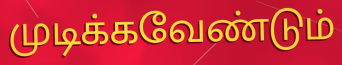
முடிக்கவேண்டும்